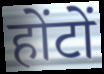
होंटों